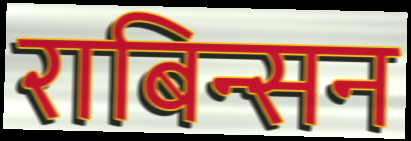
राबिन्सन